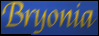
Bryonia